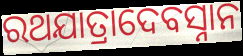
ରଥଯାତ୍ରାଦେବସ୍ନାନ